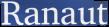
Ranaut